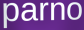
parno